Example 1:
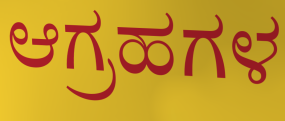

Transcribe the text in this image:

ಆಗ್ರಹಗಳ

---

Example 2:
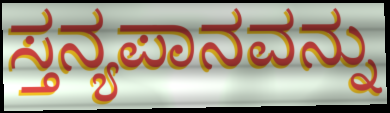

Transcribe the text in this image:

ಸ್ತನ್ಯಪಾನವನ್ನು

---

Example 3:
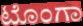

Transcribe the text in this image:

ಟೊಂಗಾ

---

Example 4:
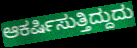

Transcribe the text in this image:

ಆಕರ್ಷಿಸುತ್ತಿದ್ದುದು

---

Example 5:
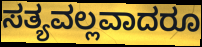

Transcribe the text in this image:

ಸತ್ಯವಲ್ಲವಾದರೂ